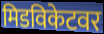
मिडविकेटवर